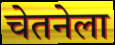
चेतनेला